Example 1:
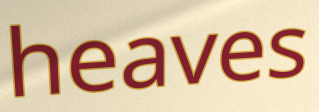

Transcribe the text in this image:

heaves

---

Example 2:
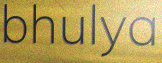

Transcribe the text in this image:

bhulya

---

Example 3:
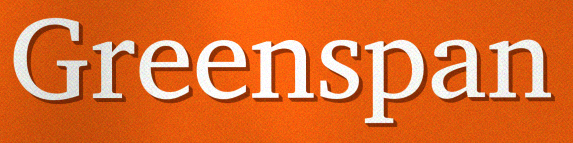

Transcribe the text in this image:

Greenspan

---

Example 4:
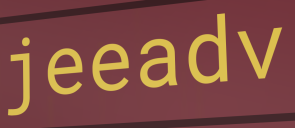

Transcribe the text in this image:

jeeadv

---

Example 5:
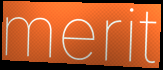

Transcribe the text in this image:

merit